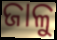
ଜାଳୁ